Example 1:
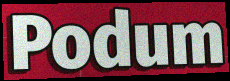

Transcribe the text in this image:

Podum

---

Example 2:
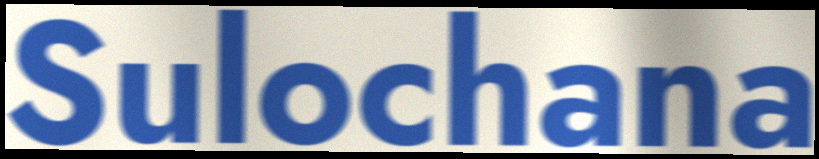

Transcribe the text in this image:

Sulochana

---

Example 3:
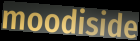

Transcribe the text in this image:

moodiside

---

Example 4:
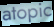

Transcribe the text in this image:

atopic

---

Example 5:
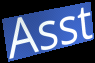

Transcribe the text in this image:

Asst